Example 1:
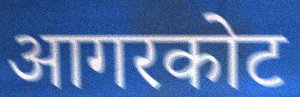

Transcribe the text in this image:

आगरकोट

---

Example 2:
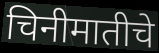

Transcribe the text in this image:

चिनीमातीचे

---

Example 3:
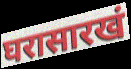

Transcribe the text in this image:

घरासारखं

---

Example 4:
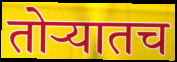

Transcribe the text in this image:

तोऱ्यातच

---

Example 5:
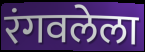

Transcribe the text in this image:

रंगवलेला